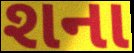
શના